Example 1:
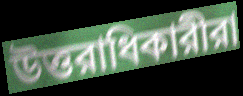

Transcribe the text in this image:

উত্তরাধিকারীরা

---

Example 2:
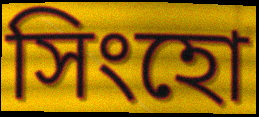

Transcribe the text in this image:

সিংহো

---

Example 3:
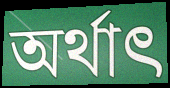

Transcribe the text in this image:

অর্থাৎ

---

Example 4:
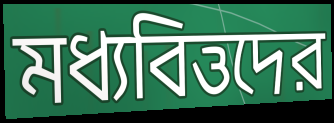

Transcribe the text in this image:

মধ্যবিত্তদের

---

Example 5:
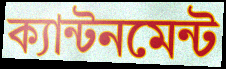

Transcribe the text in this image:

ক্যান্টনমেন্ট